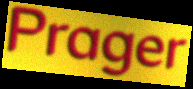
Prager